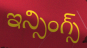
ఇన్సింగ్స్